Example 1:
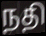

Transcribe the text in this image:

நதி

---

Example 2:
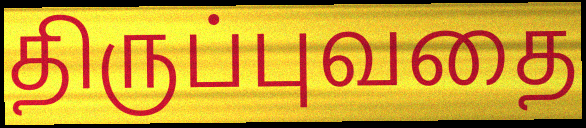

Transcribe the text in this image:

திருப்புவதை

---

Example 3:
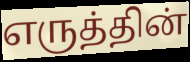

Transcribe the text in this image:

எருத்தின்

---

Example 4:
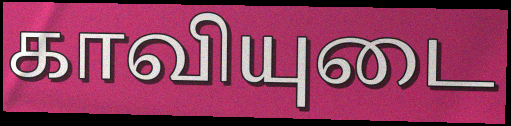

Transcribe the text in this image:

காவியுடை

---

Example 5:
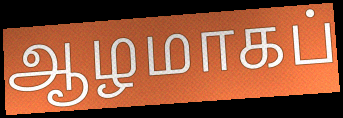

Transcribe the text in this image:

ஆழமாகப்